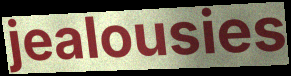
jealousies